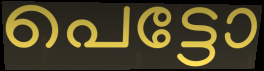
പെട്ടോ